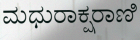
ಮಧುರಾಕ್ಷರಾಣಿ